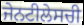
ਜੇਨਟੀਲੇਸਚੀ